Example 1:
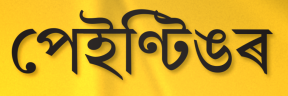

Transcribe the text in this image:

পেইণ্টিঙৰ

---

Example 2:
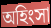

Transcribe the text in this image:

অহিংসা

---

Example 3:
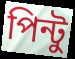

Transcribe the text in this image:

পিন্টু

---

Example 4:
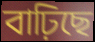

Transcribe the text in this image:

বাঢ়িছে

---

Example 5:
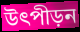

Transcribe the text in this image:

উৎপীড়ন